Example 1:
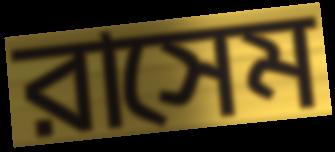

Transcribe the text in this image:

রাসেম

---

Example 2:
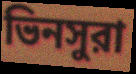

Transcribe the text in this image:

ভিনসুরা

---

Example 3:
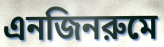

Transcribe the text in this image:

এনজিনরুমে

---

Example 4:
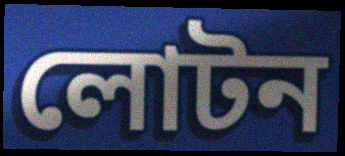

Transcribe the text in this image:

লোটন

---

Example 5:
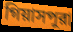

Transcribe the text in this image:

গিয়াসপুরা